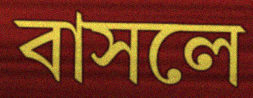
বাসলে